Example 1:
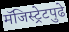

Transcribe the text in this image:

मॅजिस्ट्रेटपुढे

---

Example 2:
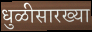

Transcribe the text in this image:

धुळीसारख्या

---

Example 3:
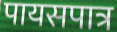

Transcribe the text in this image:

पायसपात्र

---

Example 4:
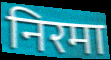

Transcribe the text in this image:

निरमा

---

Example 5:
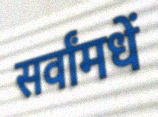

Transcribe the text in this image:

सर्वांमधें